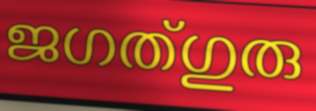
ജഗത്ഗുരു